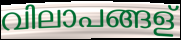
വിലാപങ്ങള്